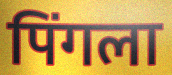
पिंगला